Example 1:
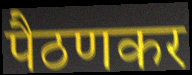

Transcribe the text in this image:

पैठणकर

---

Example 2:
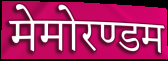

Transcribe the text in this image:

मेमोरण्डम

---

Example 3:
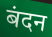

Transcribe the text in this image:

बंदन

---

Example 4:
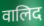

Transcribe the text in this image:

वालिद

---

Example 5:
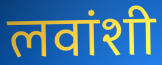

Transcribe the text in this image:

लवांशी